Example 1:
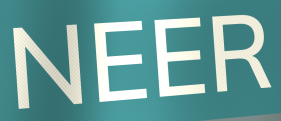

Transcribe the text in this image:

NEER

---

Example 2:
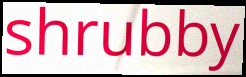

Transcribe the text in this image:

shrubby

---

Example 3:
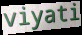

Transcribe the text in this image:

viyati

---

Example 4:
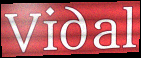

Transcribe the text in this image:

Vidal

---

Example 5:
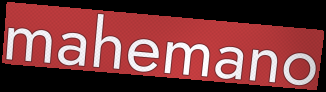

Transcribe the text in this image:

mahemano